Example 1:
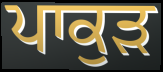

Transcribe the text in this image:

ਪਾਕੁੜ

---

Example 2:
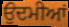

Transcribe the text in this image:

ਉਦਮੀਆਂ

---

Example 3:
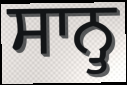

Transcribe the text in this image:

ਸਾਨ੍ਤ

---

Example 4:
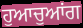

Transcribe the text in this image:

ਹੁਆਚੁਆਂਗ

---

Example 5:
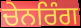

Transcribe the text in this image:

ਚੇਨਰਿੰਗ